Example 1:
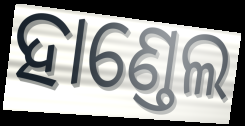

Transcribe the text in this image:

ହାଣ୍ଡେଲ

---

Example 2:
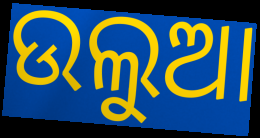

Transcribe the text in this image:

ଉଲୁଆ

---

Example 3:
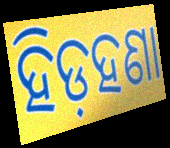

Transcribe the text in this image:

ହିଡ଼ହଣା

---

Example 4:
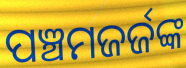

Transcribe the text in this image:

ପଞ୍ଚମଜର୍ଜଙ୍କ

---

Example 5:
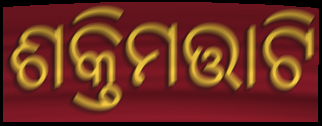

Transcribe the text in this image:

ଶକ୍ତିମତ୍ତାଟି